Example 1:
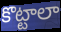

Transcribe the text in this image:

కొట్టాలా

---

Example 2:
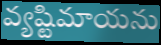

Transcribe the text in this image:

వ్యష్టిమాయను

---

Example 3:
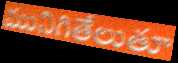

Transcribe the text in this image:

మునిగితేలుతూ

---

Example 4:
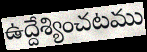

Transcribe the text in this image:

ఉద్దేశ్యించటము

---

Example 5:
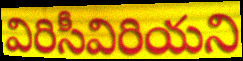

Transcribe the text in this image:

విరిసీవిరియని